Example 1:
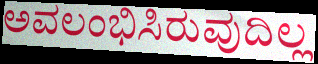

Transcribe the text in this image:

ಅವಲಂಭಿಸಿರುವುದಿಲ್ಲ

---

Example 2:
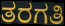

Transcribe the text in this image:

ತರಗತಿ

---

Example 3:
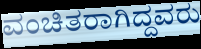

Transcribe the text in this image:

ವಂಚಿತರಾಗಿದ್ದವರು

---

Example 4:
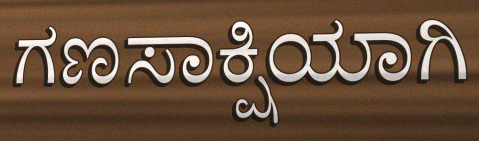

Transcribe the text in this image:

ಗಣಸಾಕ್ಷಿಯಾಗಿ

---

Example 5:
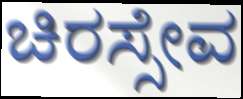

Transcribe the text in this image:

ಚಿರಸ್ಸೇವ